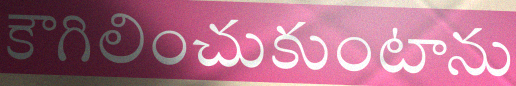
కౌగిలించుకుంటాను